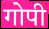
गोपी